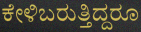
ಕೇಳಿಬರುತ್ತಿದ್ದರೂ